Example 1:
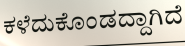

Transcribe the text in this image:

ಕಳೆದುಕೊಂಡದ್ದಾಗಿದೆ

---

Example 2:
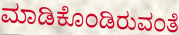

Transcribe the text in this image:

ಮಾಡಿಕೊಂಡಿರುವಂತೆ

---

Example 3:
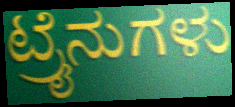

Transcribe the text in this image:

ಟ್ರೈನುಗಳು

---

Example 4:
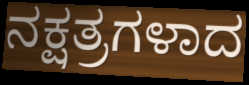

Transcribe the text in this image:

ನಕ್ಷತ್ರಗಳಾದ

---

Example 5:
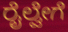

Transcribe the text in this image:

ರೈಲ್ವೇಗೆ